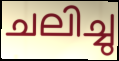
ചലിച്ചു